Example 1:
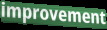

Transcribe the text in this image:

improvement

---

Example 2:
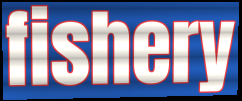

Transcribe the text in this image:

fishery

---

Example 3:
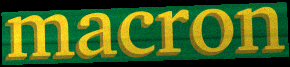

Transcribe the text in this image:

macron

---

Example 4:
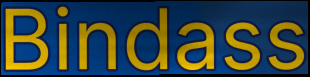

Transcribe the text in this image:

Bindass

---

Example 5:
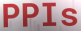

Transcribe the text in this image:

PPIs